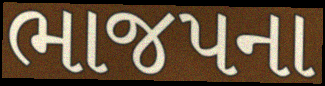
ભાજપના